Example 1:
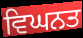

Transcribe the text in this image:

ਵਿਘਨਤ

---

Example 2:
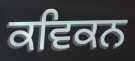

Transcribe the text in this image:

ਕਵਿਕਨ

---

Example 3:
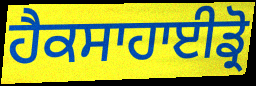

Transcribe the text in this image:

ਹੈਕਸਾਹਾਈਡ੍ਰੋ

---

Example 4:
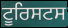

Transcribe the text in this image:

ਟੂਰਿਸਟਸ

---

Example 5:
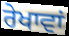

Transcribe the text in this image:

ਰੇਖਾਵਾਂ